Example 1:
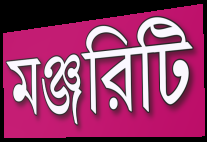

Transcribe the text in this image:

মঞ্জরিটি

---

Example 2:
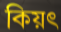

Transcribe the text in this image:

কিয়ৎ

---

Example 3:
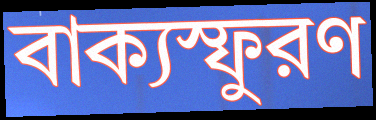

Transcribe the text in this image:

বাক্যস্ফুরণ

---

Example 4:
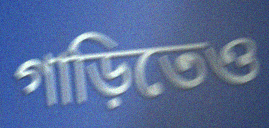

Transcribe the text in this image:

গাড়িতেও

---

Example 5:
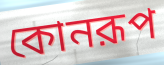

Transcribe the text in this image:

কোনরূপ